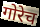
गोरेच